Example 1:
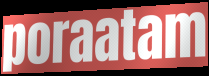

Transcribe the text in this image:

poraatam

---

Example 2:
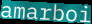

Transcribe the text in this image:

amarboi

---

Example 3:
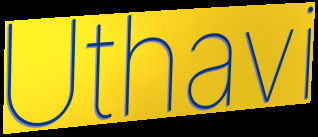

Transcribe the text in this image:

Uthavi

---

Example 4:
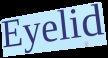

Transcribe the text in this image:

Eyelid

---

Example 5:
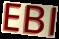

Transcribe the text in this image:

EBI